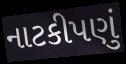
નાટકીપણું